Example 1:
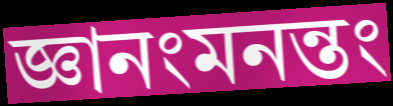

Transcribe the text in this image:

জ্ঞানংমনন্তং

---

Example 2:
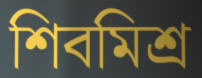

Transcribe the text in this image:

শিবমিশ্র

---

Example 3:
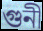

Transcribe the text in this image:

গুনী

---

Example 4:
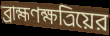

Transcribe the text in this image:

ব্রাহ্মণক্ষত্রিয়ের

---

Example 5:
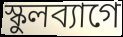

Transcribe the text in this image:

স্কুলব্যাগে